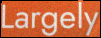
Largely